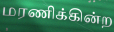
மரணிக்கின்ற